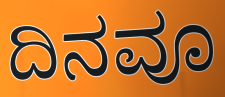
ದಿನವೂ